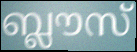
ബ്ലൗസ്